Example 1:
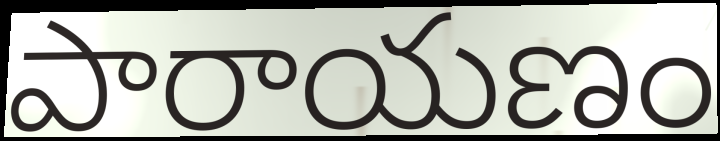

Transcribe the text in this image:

పారాయణం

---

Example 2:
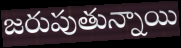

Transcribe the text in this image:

జరుపుతున్నాయి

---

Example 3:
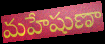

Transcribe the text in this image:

మహేషుణా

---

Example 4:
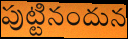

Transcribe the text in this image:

పుట్టినందున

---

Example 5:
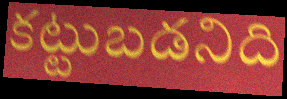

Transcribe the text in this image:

కట్టుబడనిది